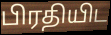
பிரதியிட